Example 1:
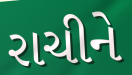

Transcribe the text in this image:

રાચીને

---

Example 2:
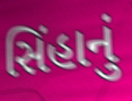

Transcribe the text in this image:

સિંહાનું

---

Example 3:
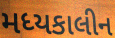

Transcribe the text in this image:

મધ્યકાલીન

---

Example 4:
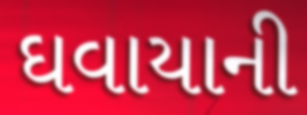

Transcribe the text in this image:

ઘવાયાની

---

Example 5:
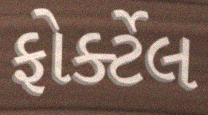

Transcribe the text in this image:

ફોર્ક્ટેલ